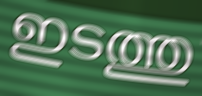
ഇടത്തു